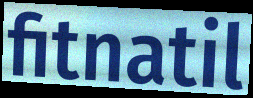
fitnatil